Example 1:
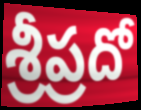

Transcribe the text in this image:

శ్రీప్రదో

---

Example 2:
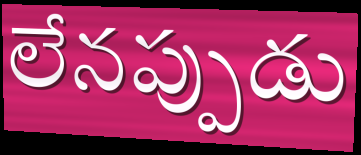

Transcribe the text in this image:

లేనప్పుడు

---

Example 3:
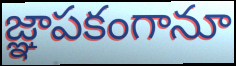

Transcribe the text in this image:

జ్ఞాపకంగానూ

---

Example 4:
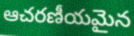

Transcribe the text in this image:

ఆచరణీయమైన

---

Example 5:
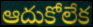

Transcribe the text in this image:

ఆదుకోలేక